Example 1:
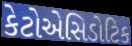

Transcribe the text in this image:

કેટોએસિડોટિક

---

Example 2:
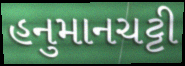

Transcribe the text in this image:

હનુમાનચટ્ટી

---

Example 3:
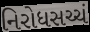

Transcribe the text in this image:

નિરોધસચ્ચં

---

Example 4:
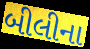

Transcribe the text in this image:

બીલીના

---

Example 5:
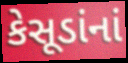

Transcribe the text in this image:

કેસૂડાંનાં